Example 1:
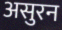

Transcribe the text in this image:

असुरन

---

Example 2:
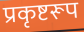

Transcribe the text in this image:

प्रकृष्टरूप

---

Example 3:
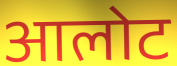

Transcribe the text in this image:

आलोट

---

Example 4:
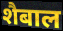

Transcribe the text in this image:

शैबाल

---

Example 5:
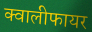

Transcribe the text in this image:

क्‍वालीफायर